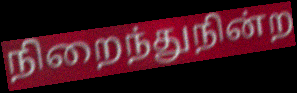
நிறைந்துநின்ற